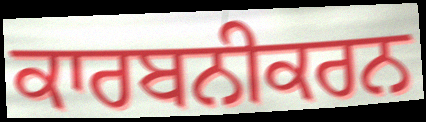
ਕਾਰਬਨੀਕਰਨ